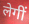
लेगीं